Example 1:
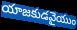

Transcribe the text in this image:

యాజకుడవైయుం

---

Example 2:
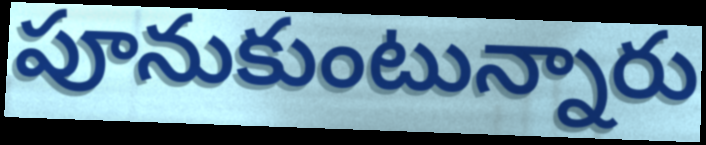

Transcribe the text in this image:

పూనుకుంటున్నారు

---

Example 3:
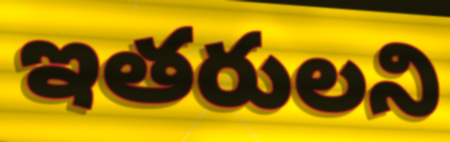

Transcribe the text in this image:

ఇతరులని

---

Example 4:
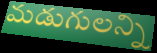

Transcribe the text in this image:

మడుగులన్ని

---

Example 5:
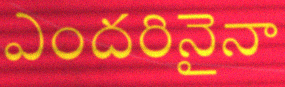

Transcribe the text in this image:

ఎందరినైనా